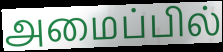
அமைப்பில்